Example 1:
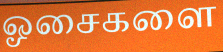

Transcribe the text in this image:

ஓசைகளை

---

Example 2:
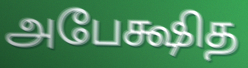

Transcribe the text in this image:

அபேக்ஷித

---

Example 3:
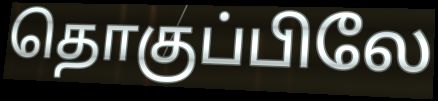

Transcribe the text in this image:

தொகுப்பிலே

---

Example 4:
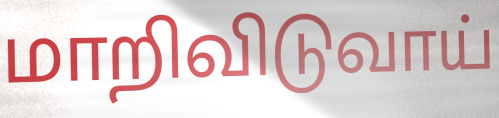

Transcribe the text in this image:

மாறிவிடுவாய்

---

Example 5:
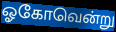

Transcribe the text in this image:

ஓகோவென்று